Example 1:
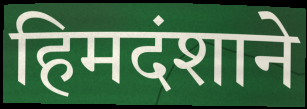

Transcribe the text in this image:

हिमदंशाने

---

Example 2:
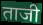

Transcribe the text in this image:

ताजी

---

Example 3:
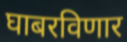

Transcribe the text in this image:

घाबरविणार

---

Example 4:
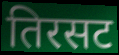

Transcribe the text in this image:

तिरसट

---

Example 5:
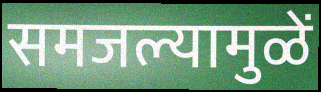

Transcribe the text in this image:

समजल्यामुळें